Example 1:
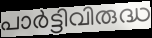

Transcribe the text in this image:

പാർട്ടിവിരുദ്ധ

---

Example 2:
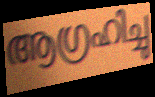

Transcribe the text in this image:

ആഗ്രഹിച്ചു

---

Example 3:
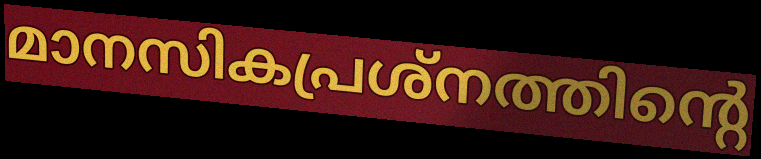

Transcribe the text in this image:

മാനസികപ്രശ്നത്തിന്റെ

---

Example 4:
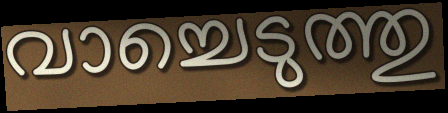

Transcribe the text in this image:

വാച്ചെടുത്തു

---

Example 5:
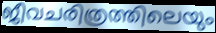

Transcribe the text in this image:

ജീവചരിത്രത്തിലെയും